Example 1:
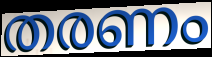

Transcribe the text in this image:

തരണം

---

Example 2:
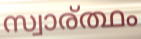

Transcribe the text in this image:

സ്വാര്ത്ഥം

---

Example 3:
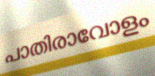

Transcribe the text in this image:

പാതിരാവോളം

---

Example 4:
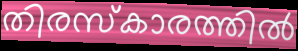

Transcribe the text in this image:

തിരസ്കാരത്തിൽ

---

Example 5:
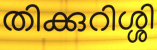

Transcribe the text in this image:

തിക്കുറിശ്ശി